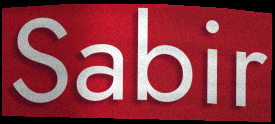
Sabir